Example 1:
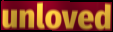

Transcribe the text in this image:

unloved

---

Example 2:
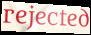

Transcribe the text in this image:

rejected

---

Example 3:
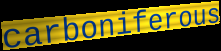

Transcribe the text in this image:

carboniferous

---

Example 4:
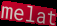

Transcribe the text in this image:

melat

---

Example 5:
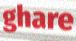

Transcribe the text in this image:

ghare